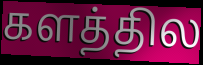
களத்தில